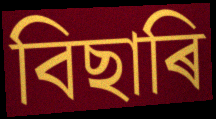
বিছাৰি